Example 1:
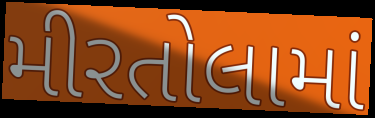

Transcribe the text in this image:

મીરતોલામાં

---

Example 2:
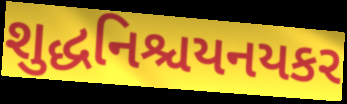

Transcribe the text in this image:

શુદ્ધનિશ્ચયનયકર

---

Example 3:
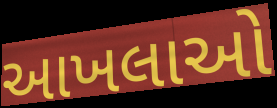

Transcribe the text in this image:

આખલાઓ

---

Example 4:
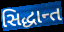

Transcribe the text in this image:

સિદ્ધાન્ત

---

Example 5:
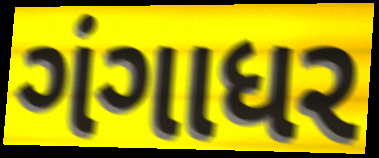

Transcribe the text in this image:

ગંગાધર